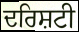
ਦਰਿਸ਼ਟੀ